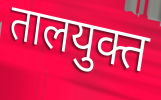
तालयुक्त